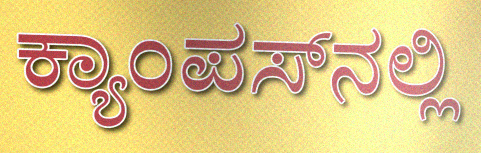
ಕ್ಯಾಂಪಸ್‌ನಲ್ಲಿ